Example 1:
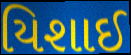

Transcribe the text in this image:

યિશાઈ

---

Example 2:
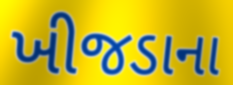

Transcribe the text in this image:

ખીજડાના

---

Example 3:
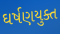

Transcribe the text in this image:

ઘર્ષણયુક્ત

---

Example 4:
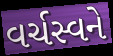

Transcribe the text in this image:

વર્ચસ્વને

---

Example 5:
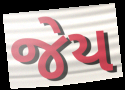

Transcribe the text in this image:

જેય